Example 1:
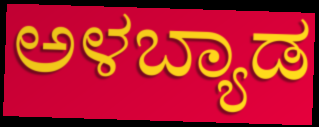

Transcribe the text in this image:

ಅಳಬ್ಯಾಡ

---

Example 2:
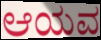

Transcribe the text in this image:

ಆಯವ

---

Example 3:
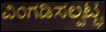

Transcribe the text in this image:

ವಿಂಗಡಿಸಲ್ಪಟ್ಟ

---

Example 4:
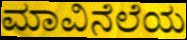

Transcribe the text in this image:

ಮಾವಿನೆಲೆಯ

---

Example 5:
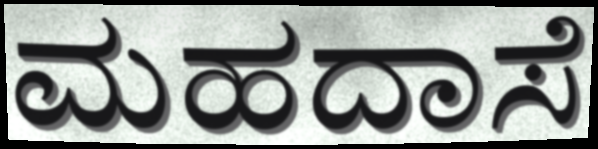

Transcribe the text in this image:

ಮಹದಾಸೆ